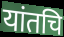
यांतचि